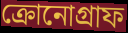
ক্রোনোগ্রাফ